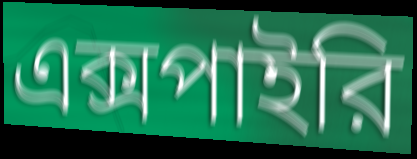
এক্সপাইরি